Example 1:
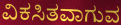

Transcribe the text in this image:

ವಿಕಸಿತವಾಗುವ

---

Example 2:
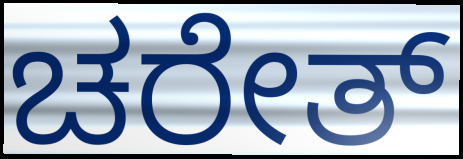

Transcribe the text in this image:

ಚರೇತ್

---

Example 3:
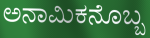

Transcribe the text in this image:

ಅನಾಮಿಕನೊಬ್ಬ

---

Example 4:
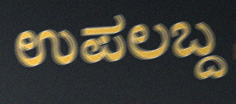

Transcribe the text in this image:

ಉಪಲಬ್ದ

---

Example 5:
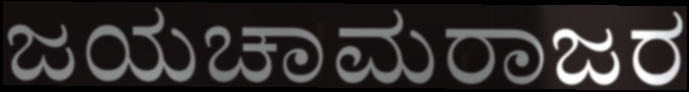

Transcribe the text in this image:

ಜಯಚಾಮರಾಜರ